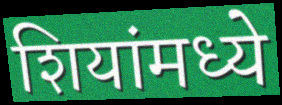
शियांमध्ये